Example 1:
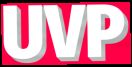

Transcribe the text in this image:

UVP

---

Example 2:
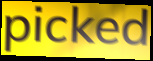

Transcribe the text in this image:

picked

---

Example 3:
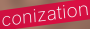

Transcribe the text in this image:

conization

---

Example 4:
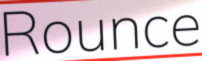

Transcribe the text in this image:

Rounce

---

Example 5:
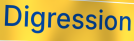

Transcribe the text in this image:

Digression